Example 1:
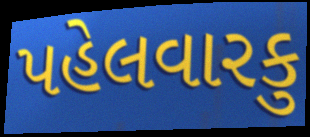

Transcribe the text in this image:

પહેલવારકુ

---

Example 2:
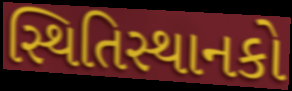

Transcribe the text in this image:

સ્થિતિસ્થાનકો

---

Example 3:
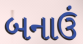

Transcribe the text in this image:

બનાઉં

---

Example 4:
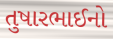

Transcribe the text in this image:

તુષારભાઈનો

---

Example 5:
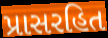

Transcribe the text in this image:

પ્રાસરહિત